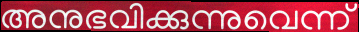
അനുഭവിക്കുന്നുവെന്ന്